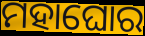
ମହାଘୋର